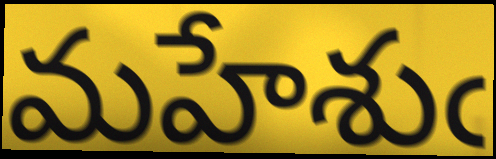
మహేశుఁ